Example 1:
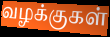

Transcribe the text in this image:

வழக்குகள்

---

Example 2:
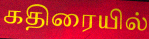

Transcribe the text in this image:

கதிரையில்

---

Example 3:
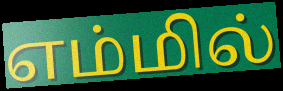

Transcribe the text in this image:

எம்மில்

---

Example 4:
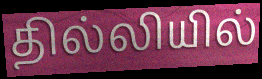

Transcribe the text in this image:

தில்லியில்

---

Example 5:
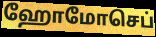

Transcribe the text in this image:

ஹோமோசெப்